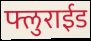
फ्लुराईड